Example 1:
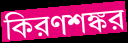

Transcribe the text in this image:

কিরণশঙ্কর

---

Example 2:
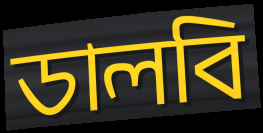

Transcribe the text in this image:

ডালবি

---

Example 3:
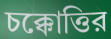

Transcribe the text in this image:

চক্কোত্তির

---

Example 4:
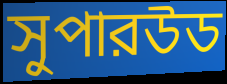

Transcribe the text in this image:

সুপারউড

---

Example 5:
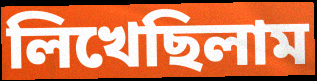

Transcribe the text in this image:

লিখেছিলাম